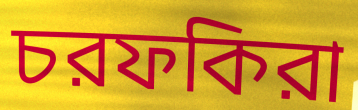
চরফকিরা